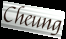
Cheung